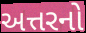
અત્તરનો